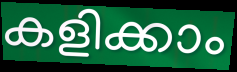
കളിക്കാം